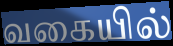
வகையில்